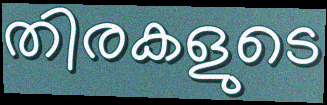
തിരകളുടെ